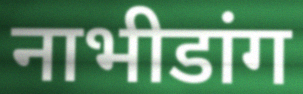
नाभीडांग